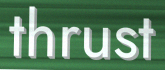
thrust